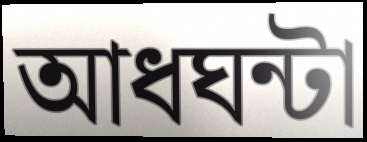
আধঘন্টা